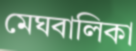
মেঘবালিকা